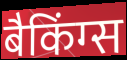
बैकिंग्स